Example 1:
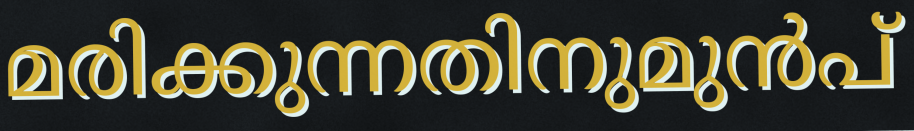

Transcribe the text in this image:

മരിക്കുന്നതിനുമുൻപ്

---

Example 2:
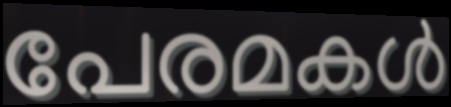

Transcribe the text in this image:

പേരമകൾ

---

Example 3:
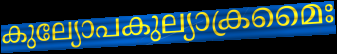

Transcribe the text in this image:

കുല്യോപകുല്യാക്രമൈഃ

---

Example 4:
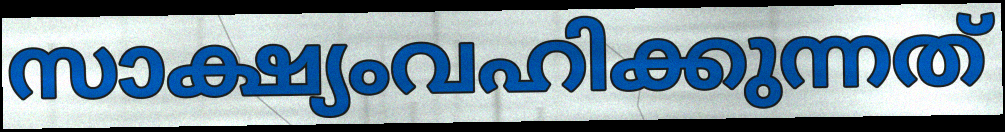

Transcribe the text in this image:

സാക്ഷ്യംവഹിക്കുന്നത്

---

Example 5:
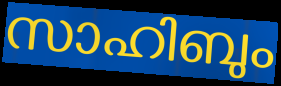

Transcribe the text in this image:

സാഹിബും